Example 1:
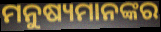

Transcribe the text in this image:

ମନୁଷ୍ୟମାନଙ୍କର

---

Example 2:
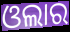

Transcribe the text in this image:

ଓଲାର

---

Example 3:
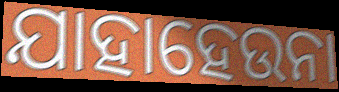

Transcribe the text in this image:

ଯାହାହେଉନା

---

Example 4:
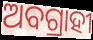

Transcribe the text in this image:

ଅବଗ୍ରାହୀ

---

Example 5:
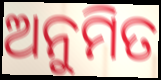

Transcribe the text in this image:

ଅନୁମିତ